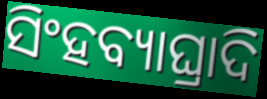
ସିଂହବ୍ୟାଘ୍ରାଦି